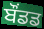
ਬੌਂਡਡ